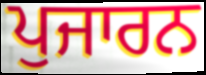
ਪੁਜਾਰਨ